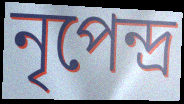
নৃপেন্দ্র